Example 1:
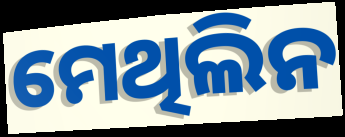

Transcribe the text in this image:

ମେଥିଲିନ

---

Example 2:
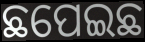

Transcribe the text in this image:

ଛପେଇଛ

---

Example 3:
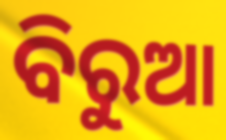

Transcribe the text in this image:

ବିରୁଆ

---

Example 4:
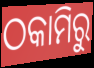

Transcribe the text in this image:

ଠକାମିରୁ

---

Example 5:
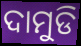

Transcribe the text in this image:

ଦାମୁଡି